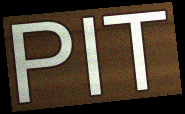
PIT